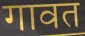
गावत